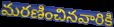
మరణించినవారికి